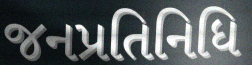
જનપ્રતિનિધિ